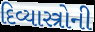
દિવ્યાસ્ત્રોની